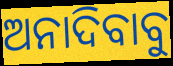
ଅନାଦିବାବୁ